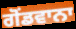
ਗੋਂਡਵਾਨਾ